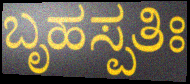
ಬೃಹಸ್ಪತಿಃ